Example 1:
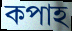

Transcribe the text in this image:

কপাহ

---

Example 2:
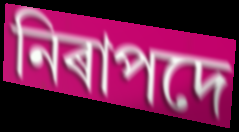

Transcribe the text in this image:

নিৰাপদে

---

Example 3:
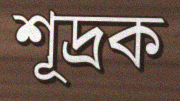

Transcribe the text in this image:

শূদ্ৰক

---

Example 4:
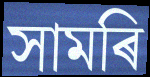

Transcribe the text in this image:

সামৰি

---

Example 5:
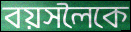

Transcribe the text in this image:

বয়সলৈকে